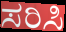
ಸರಿಸಿ